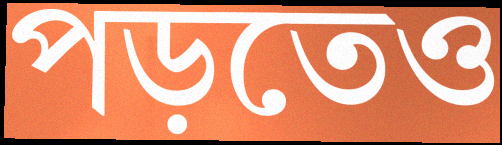
পড়তেও